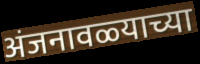
अंजनावळ्याच्या